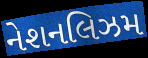
નેશનલિઝમ